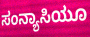
ಸಂನ್ಯಾಸಿಯೂ